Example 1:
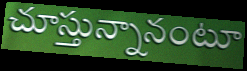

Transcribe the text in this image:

చూస్తున్నానంటూ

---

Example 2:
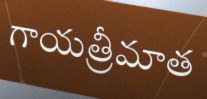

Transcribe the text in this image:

గాయత్రీమాత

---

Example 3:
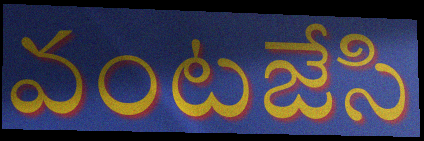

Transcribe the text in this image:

వంటజేసి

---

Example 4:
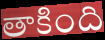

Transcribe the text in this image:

తాకింది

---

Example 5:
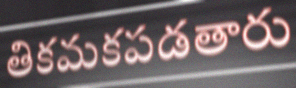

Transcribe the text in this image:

తికమకపడతారు